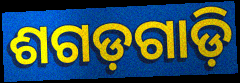
ଶଗଡ଼ଗାଡ଼ି